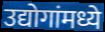
उद्योगांमध्ये